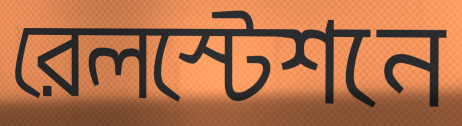
রেলস্টেশনে